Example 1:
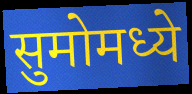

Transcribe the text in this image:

सुमोमध्ये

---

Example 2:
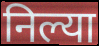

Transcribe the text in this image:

निल्या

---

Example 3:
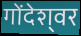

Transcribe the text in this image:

गोंदेश्वर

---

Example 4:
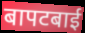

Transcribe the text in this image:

बापटबाई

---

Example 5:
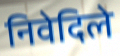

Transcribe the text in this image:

निवेदिले